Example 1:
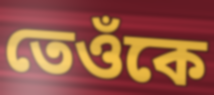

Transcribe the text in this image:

তেওঁকে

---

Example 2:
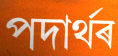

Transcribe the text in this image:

পদাৰ্থৰ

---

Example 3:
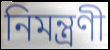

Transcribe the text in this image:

নিমন্ত্ৰণী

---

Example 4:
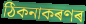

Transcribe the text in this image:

ঠিকনাকৰণৰ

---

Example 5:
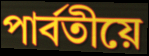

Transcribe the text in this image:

পাৰ্বতীয়ে